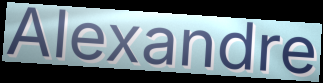
Alexandre